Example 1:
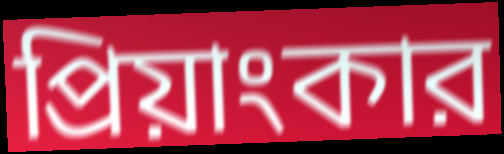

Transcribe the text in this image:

প্রিয়াংকার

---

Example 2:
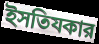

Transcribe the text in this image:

ইসতিযকার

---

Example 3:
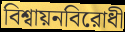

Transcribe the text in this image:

বিশ্বায়নবিরোধী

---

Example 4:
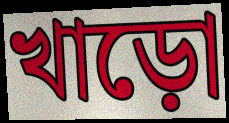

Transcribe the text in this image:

খাড়ো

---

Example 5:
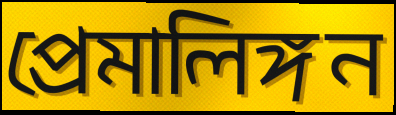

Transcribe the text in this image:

প্রেমালিঙ্গন